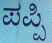
ಪಪ್ಪಿ